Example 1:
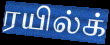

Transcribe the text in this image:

ரயில்க்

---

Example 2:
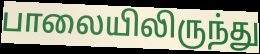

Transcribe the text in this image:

பாலையிலிருந்து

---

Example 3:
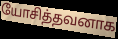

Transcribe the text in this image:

யோசித்தவனாக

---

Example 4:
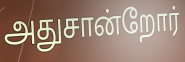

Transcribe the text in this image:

அதுசான்றோர்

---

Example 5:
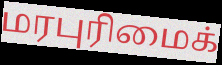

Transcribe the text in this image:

மரபுரிமைக்